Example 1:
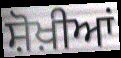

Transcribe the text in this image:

ਸ਼ੋਖ਼ੀਆਂ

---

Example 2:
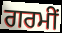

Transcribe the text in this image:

ਗਰਮੀਂ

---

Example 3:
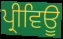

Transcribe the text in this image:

ਪ੍ਰੀਵਿਊ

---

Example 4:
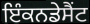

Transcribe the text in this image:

ਇੰਕਨਡੇਸੈਂਟ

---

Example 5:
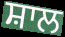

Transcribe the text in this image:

ਸ਼ਾਲ